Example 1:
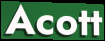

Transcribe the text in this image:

Acott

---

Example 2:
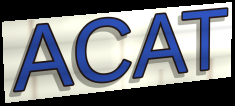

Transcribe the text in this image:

ACAT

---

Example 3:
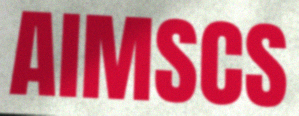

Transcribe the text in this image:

AIMSCS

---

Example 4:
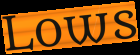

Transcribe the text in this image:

Lows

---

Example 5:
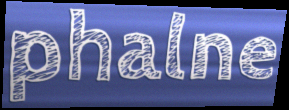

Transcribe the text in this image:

phalne